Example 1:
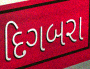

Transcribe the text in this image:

દિગબરા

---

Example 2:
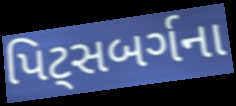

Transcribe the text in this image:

પિટ્સબર્ગના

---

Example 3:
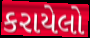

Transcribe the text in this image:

કરાયેલો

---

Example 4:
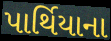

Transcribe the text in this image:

પાર્થિયાના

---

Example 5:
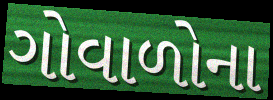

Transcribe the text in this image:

ગોવાળોના